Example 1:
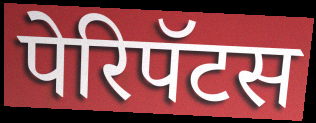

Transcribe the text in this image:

पेरिपॅटस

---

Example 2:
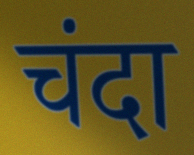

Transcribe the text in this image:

चंदा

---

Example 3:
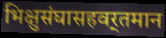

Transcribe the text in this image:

भिक्षुसंघासहवर्तमान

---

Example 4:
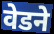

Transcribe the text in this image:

वेडने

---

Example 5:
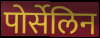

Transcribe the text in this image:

पोर्सेलिन